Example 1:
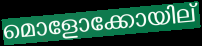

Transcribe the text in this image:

മൊളോക്കോയില്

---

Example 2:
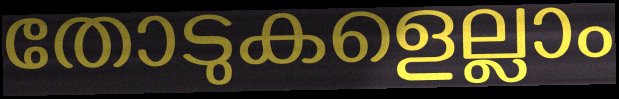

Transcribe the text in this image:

തോടുകളെല്ലാം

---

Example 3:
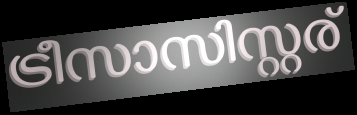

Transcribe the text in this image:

ട്രീസാസിസ്റ്റര്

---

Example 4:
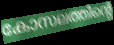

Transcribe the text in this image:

കോസലത്തിന്റെ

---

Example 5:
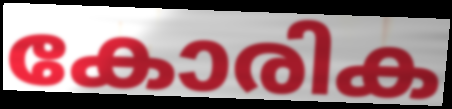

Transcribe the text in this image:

കോരിക